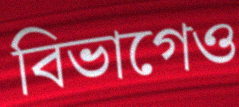
বিভাগেও